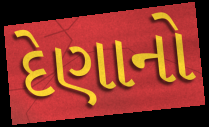
દેણાનો